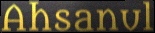
Ahsanul